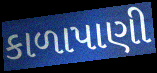
કાળાપાણી